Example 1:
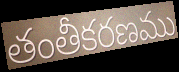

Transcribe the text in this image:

తంతీకరణము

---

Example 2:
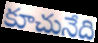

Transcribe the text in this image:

కూచునేది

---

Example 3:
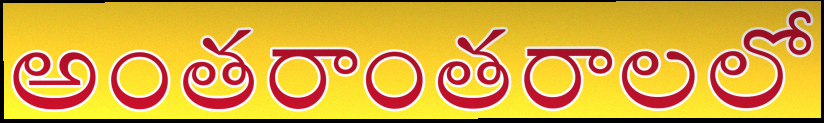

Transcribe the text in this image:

అంతరాంతరాలలో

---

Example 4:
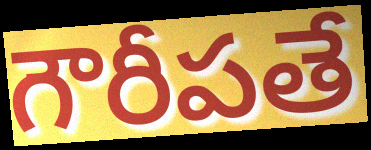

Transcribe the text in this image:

గౌరీపతే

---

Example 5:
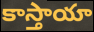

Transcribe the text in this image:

కాస్తాయా